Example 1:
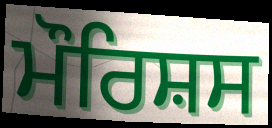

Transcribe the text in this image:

ਮੌਰਿਸ਼ਸ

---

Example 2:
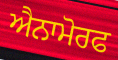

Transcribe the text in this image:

ਐਨਾਮੋਰਫ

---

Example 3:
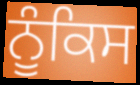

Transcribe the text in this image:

ਨੂੰਕਿਸ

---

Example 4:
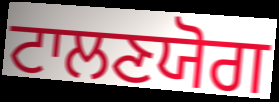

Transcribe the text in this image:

ਟਾਲਣਯੋਗ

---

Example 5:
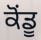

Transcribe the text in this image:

ਕੋਂਡੂ